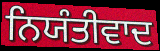
ਨਿਯੰਤੀਵਾਦ